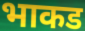
भाकड